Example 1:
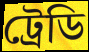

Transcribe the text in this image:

ট্রেডি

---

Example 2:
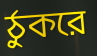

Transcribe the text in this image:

ঠুকরে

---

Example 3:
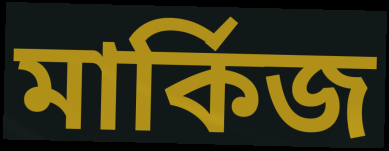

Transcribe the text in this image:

মার্কিজ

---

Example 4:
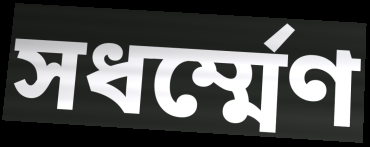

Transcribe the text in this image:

সধর্ম্মেণ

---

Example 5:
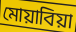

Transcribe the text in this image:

মোয়াবিয়া